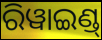
ରିୱାଇଣ୍ଡ୍